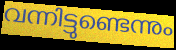
വന്നിട്ടുണ്ടെന്നും